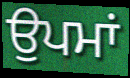
ਉਪਮਾਂ